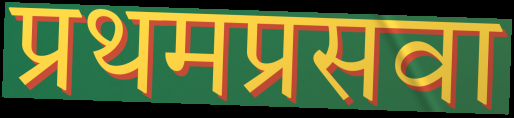
प्रथमप्रसवा